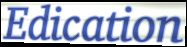
Edication